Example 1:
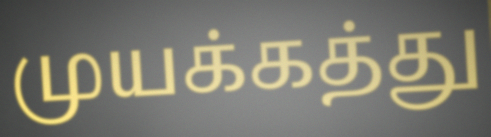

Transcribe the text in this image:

முயக்கத்து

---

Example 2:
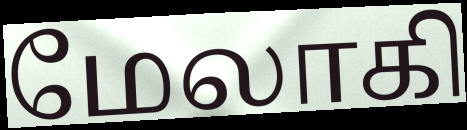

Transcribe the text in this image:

மேலாகி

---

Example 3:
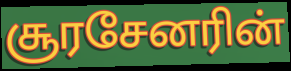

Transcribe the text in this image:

சூரசேனரின்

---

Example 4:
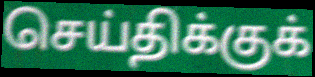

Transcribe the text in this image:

செய்திக்குக்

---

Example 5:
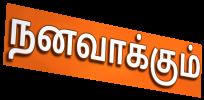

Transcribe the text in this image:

நனவாக்கும்